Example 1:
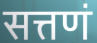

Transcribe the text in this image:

सत्तणं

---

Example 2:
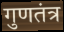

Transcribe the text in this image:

गुणतंत्र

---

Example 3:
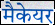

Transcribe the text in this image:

मैकेयर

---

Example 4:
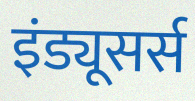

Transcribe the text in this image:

इंड्यूसर्स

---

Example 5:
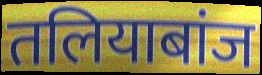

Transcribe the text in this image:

तलियाबांज